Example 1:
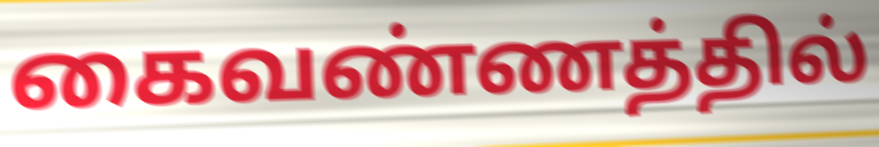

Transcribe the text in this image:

கைவண்ணத்தில்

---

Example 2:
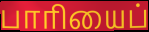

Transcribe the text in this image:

பாரியைப்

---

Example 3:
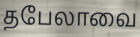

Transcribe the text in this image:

தபேலாவை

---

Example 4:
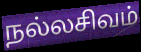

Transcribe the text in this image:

நல்லசிவம்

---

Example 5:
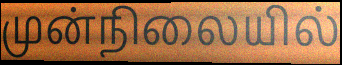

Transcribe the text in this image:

முன்நிலையில்